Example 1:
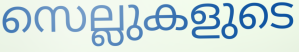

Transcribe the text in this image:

സെല്ലുകളുടെ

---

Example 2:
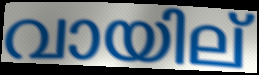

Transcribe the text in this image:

വായില്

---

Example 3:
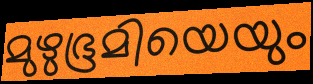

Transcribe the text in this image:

മുഴുഭൂമിയെയും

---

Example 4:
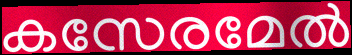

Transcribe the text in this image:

കസേരമേൽ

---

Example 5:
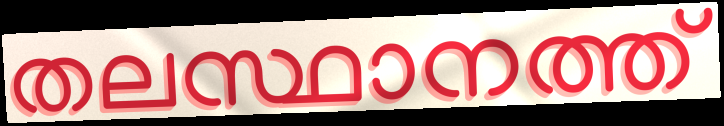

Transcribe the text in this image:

തലസ്ഥാനത്ത്